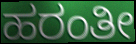
ಹರಂತೀ